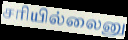
சரியில்லைனு